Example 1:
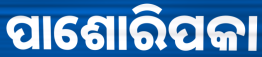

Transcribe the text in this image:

ପାଶୋରିପକା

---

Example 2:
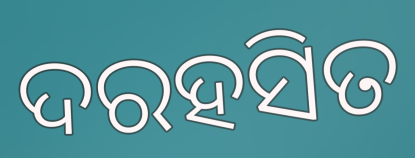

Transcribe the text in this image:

ଦରହସିତ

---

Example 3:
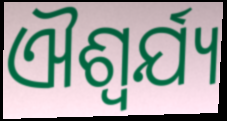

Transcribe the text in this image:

ଐଶ୍ଵର୍ଯ୍ୟ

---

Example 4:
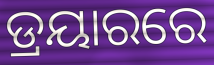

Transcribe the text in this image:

ଡ୍ରୟାରରେ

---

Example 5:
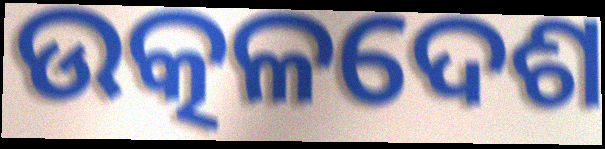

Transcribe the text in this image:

ଉତ୍କଳଦେଶ